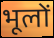
भूलों